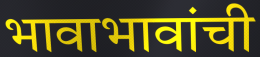
भावाभावांची